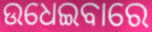
ଉଧେଇବାରେ